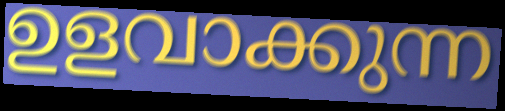
ഉളവാക്കുന്ന